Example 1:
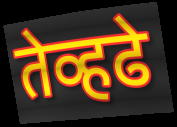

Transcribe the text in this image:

तेव्हढे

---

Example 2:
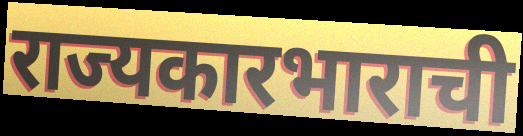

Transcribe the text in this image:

राज्यकारभाराची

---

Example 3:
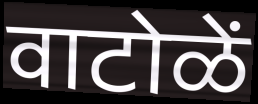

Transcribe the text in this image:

वाटोळें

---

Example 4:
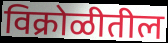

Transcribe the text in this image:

विक्रोळीतील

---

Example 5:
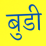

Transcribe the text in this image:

बुडी